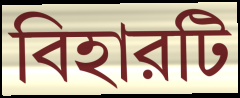
বিহারটি